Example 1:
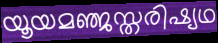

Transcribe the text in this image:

യൂയമഞ്ജസ്തരിഷ്യഥ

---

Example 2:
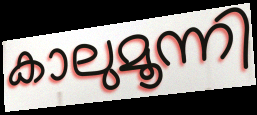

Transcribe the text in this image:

കാലുമൂന്നി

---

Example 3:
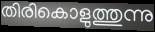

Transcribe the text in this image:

തിരികൊളുത്തുന്നു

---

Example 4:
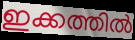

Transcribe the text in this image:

ഇക്കത്തിൽ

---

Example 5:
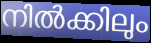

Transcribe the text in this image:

നിൽക്കിലും